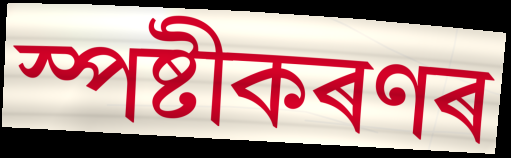
স্পষ্টীকৰণৰ